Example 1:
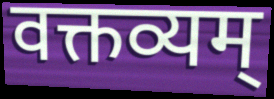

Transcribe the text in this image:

वक्तव्यम्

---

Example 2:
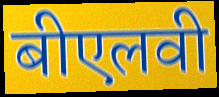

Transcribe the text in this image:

बीएलवी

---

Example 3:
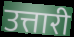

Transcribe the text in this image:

उत्तारी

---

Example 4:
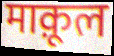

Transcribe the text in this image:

माक़ूल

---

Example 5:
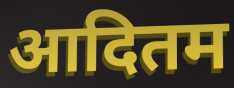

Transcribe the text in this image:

आदितम